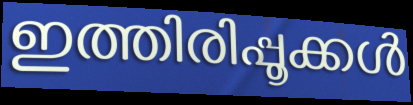
ഇത്തിരിപ്പൂക്കൾ